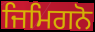
ਜਿਮਿਗਨੋ